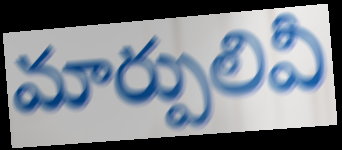
మార్పులివీ